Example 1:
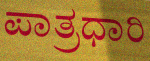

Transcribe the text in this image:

ಪಾತ್ರಧಾರಿ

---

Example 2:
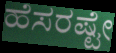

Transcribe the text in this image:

ಹೆಸರಷ್ಟೇ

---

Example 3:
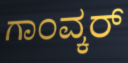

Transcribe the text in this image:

ಗಾಂವ್ಕರ್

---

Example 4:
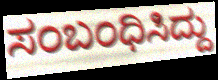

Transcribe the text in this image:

ಸಂಬಂಧಿಸಿದ್ದು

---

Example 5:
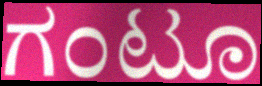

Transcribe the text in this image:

ಗಂಟೂ